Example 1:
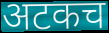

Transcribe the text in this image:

अटकच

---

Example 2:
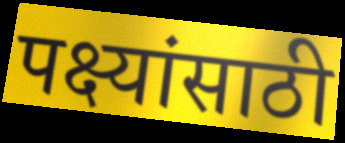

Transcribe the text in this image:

पक्ष्यांसाठी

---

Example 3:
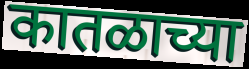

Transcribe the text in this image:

कातळाच्या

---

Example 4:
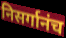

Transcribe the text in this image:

निसर्गानंच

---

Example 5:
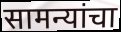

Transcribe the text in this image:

सामन्यांचा